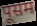
पूसम